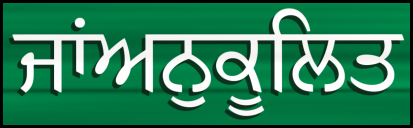
ਜਾਂਅਨੁਕੂਲਿਤ